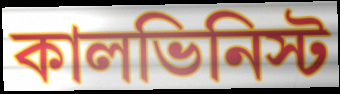
কালভিনিস্ট